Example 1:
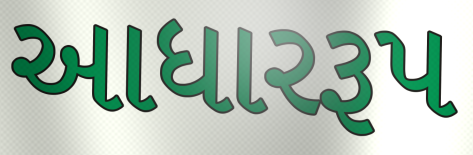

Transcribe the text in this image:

આધારરૂપ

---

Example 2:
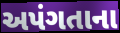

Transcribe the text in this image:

અપંગતાના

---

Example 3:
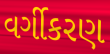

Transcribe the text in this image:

વર્ગીકરણ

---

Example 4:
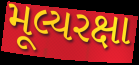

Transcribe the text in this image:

મૂલ્યરક્ષા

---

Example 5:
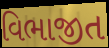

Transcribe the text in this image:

વિભાજીત